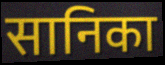
सानिका